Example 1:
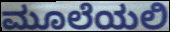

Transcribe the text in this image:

ಮೂಲೆಯಲಿ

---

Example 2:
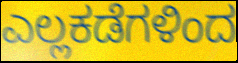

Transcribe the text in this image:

ಎಲ್ಲಕಡೆಗಳಿಂದ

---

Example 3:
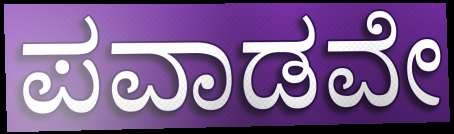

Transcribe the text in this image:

ಪವಾಡವೇ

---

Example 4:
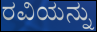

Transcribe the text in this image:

ರವಿಯನ್ನು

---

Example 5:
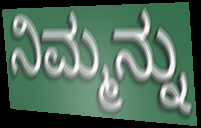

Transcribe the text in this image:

ನಿಮ್ಮನ್ನು